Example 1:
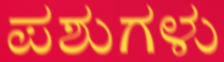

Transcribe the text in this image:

ಪಶುಗಳು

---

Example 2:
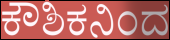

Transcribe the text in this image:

ಕೌಶಿಕನಿಂದ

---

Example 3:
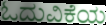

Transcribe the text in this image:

ಓದುವಿಕೆಯ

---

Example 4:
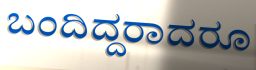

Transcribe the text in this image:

ಬಂದಿದ್ದರಾದರೂ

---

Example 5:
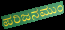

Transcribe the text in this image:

ಪರಿಜನಮುಂ